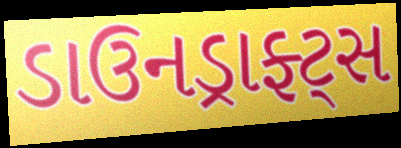
ડાઉનડ્રાફ્ટ્સ